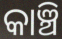
କାଞ୍ଚି